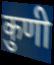
कुणी